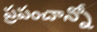
ప్రపంచాన్నో